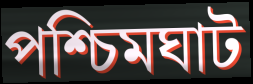
পশ্চিমঘাট